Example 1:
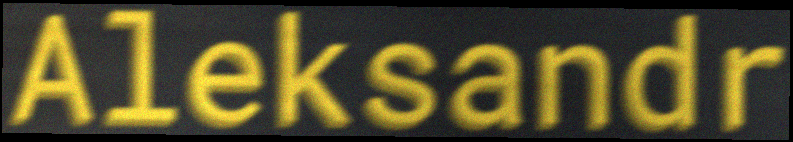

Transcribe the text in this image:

Aleksandr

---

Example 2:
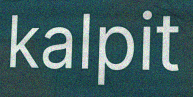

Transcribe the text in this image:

kalpit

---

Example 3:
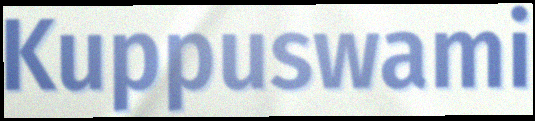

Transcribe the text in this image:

Kuppuswami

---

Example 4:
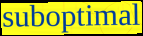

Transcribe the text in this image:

suboptimal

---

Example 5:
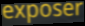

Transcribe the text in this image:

exposer